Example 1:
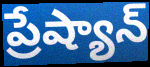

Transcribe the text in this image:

ప్రేష్యాన్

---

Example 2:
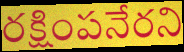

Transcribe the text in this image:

రక్షింపనేరని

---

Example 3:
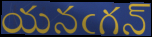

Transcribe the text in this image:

యనఁగన్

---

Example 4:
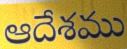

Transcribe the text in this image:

ఆదేశము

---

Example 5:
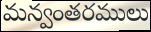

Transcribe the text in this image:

మన్వంతరములు